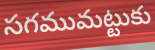
సగముమట్టుకు